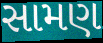
સામણ